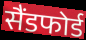
सैंडफोर्ड